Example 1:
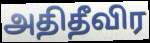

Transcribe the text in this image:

அதிதீவிர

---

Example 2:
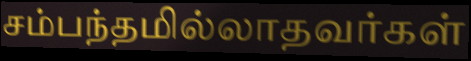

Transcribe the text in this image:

சம்பந்தமில்லாதவர்கள்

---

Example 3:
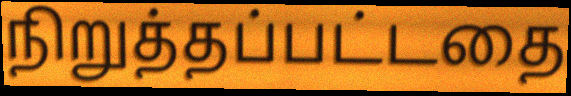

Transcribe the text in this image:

நிறுத்தப்பட்டதை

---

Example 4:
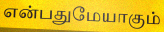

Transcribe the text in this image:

என்பதுமேயாகும்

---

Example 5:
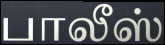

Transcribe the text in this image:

பாலீஸ்